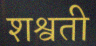
शश्वती